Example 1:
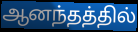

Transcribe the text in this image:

ஆனந்தத்தில்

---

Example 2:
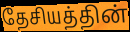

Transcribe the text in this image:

தேசியத்தின்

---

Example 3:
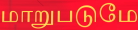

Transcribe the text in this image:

மாறுபடுமே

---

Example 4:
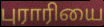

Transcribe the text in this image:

புராரியை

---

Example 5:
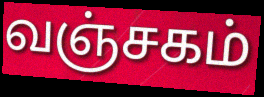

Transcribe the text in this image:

வஞ்சகம்